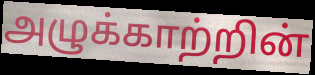
அழுக்காற்றின்